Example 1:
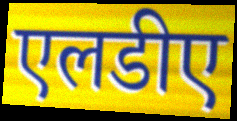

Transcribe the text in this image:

एलडीए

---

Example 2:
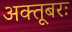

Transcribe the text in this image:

अक्तूबरः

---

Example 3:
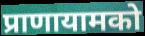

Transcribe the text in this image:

प्राणायामको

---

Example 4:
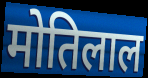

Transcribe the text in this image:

मोतिलाल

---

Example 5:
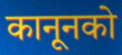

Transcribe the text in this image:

कानूनको